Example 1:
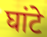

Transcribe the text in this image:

घांटे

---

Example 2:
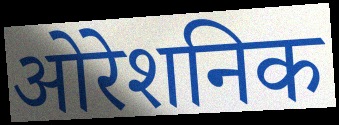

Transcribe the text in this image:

ओरेशनिक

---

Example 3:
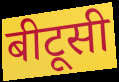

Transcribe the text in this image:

बीटूसी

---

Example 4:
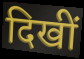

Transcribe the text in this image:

दिखीं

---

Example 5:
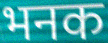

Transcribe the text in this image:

भनक